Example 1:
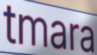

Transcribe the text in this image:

tmara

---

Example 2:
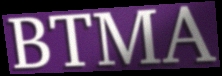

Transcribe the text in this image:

BTMA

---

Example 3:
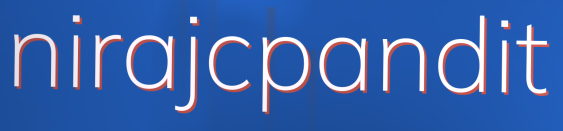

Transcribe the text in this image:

nirajcpandit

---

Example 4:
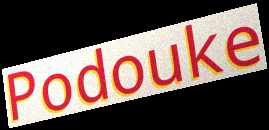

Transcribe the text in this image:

Podouke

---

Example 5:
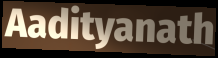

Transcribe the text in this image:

Aadityanath